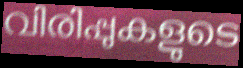
വിരിപ്പുകളുടെ